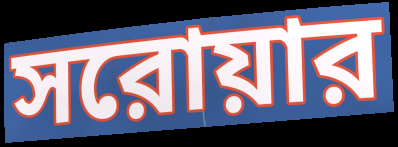
সরোয়ার